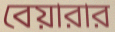
বেয়ারার